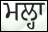
ਮਲ੍ਹਾ